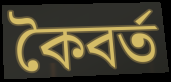
কৈবর্ত